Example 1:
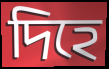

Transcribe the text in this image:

দিহে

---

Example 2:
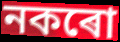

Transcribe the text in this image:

নকৰো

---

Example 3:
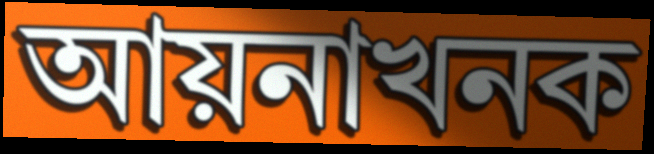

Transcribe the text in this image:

আয়নাখনক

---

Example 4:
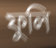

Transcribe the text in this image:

ফুলি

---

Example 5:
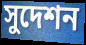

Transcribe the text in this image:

সুদেশন